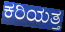
ಕರಿಯತ್ತ